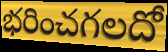
భరించగలదో